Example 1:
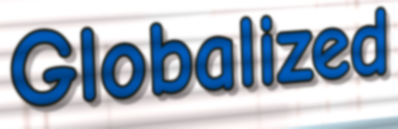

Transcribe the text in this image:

Globalized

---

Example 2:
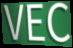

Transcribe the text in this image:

VEC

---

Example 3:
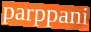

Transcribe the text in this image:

parppani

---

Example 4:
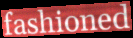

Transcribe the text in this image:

fashioned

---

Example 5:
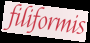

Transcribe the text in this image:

filiformis